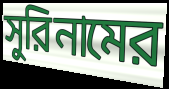
সুরিনামের